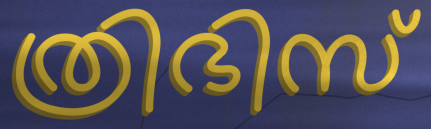
ത്രിഭിസ്